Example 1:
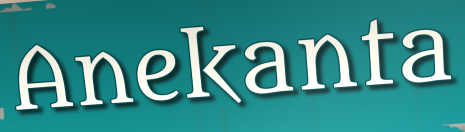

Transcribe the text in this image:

Anekanta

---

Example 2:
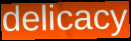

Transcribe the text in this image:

delicacy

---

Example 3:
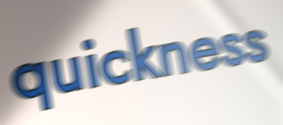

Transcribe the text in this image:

quickness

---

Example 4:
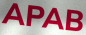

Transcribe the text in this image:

APAB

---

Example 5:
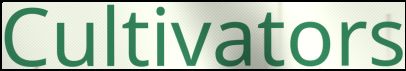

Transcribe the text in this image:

Cultivators